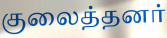
குலைத்தனர்